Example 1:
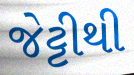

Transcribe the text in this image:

જેટ્ટીથી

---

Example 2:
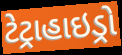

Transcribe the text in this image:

ટેટ્રાહાઇડ્રો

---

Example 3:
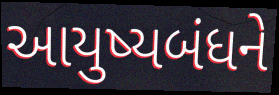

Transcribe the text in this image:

આયુષ્યબંધને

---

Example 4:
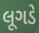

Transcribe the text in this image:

લૂગડે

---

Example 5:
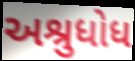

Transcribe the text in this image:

અશ્રુધોધ